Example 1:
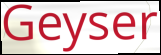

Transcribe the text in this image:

Geyser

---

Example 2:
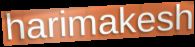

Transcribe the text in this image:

harimakesh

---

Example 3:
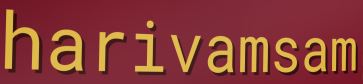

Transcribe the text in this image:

harivamsam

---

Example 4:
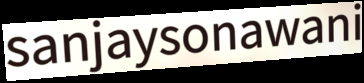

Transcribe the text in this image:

sanjaysonawani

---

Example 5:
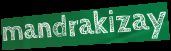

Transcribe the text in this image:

mandrakizay